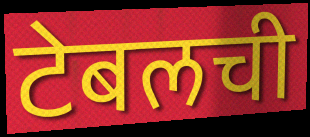
टेबलची